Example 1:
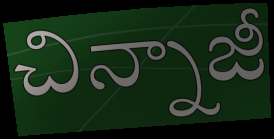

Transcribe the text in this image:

చిన్నాజీ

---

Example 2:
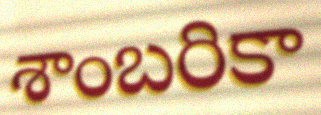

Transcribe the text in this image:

శాంబరికా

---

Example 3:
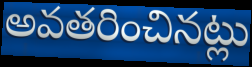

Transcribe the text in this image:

అవతరించినట్లు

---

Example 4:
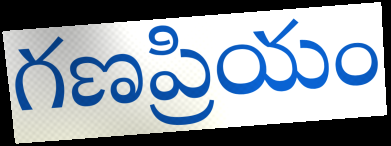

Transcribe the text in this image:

గణప్రియం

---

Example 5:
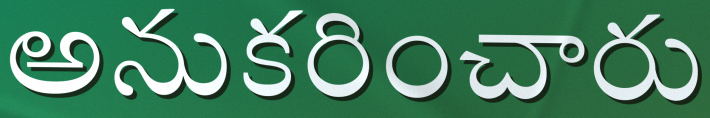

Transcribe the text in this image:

అనుకరించారు